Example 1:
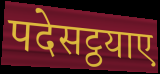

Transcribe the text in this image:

पदेसट्ठयाए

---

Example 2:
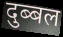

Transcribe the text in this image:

दुब्बल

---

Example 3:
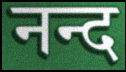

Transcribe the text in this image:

नन्द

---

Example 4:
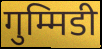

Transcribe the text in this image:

गुम्मिडी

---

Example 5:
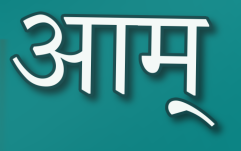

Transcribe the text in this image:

आम्